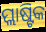
ପ୍ଲାଷ୍ଟିକ